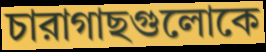
চারাগাছগুলোকে